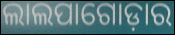
ଲାଲପାଗୋଡ଼ାର